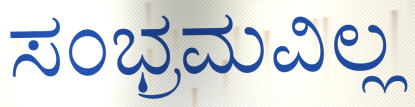
ಸಂಭ್ರಮವಿಲ್ಲ